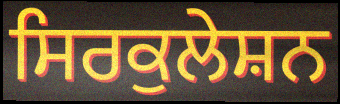
ਸਿਰਕੁਲੇਸ਼ਨ